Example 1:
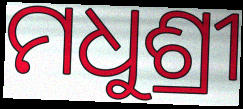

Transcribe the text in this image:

ମଧୁଶ୍ରୀ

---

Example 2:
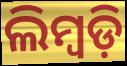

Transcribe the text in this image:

ଲିମ୍ବଡ଼ି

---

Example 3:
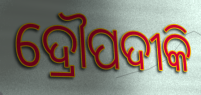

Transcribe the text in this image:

ଦ୍ରୌପଦୀକି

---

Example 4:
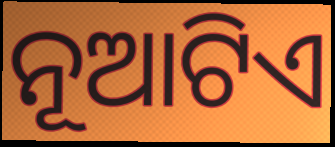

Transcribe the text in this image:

ନୂଆଟିଏ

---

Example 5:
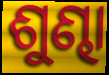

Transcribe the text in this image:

ଶୁଣ୍ଢା